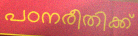
പഠനരീതിക്ക്